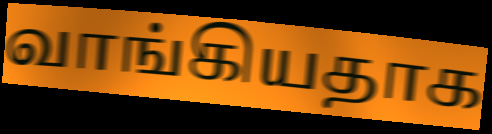
வாங்கியதாக